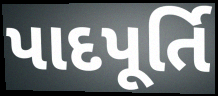
પાદપૂર્તિ